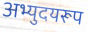
अभ्युदयरूप